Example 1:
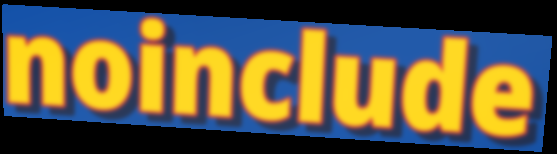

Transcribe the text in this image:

noinclude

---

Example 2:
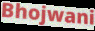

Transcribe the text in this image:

Bhojwani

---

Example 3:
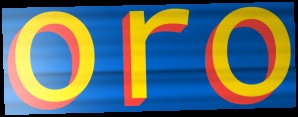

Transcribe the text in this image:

oro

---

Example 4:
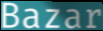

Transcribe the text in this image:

Bazar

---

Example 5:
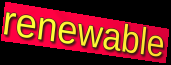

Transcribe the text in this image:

renewable